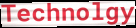
Technolgy